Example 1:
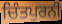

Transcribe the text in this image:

ਚਿੰਤਪੁਰਨੀ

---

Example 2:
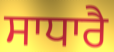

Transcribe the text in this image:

ਸਾਧਾਰੈ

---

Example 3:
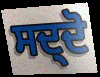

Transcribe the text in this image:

ਸਦ੍ਦੋ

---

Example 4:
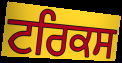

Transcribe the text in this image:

ਟਰਿਕਸ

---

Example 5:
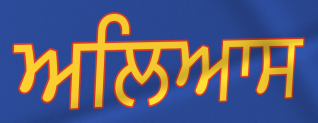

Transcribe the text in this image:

ਅਲਿਆਸ